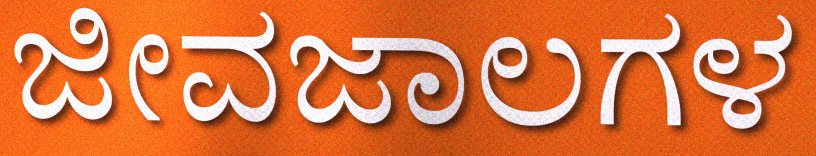
ಜೀವಜಾಲಗಳ